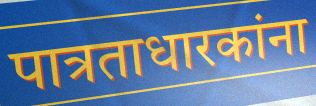
पात्रताधारकांना